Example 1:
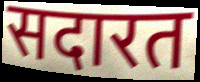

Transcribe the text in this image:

सदारत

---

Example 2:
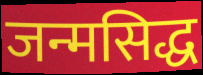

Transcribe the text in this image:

जन्‍मसिद्ध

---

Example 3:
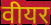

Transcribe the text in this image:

वीयर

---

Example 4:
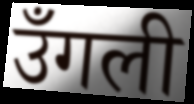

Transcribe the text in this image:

उँगली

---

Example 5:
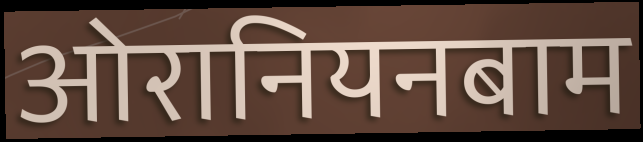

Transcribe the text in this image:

ओरानियनबाम